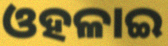
ଓହଳାଇ